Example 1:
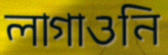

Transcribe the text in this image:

লাগাওনি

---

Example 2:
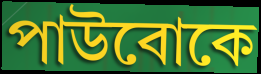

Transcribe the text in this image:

পাউবোকে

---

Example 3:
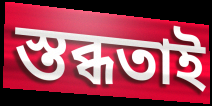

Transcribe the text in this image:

স্তব্ধতাই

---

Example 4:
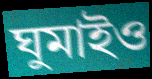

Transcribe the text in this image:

ঘুমাইও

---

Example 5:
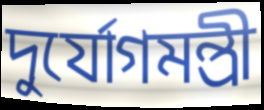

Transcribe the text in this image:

দুর্যোগমন্ত্রী